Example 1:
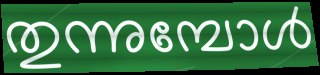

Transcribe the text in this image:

തുന്നുമ്പോൾ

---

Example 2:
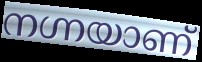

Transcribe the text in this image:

നഗ്നയാണ്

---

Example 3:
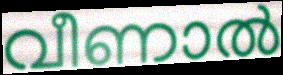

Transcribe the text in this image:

വീണാൽ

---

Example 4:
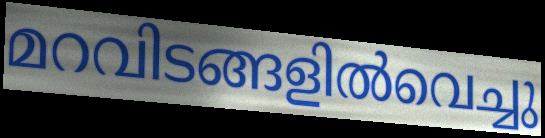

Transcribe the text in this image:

മറവിടങ്ങളിൽവെച്ചു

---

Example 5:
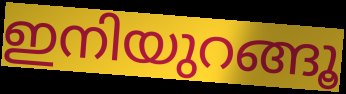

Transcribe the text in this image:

ഇനിയുറങ്ങൂ